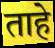
ताहे